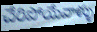
చేరిపోయేవాళ్ళు